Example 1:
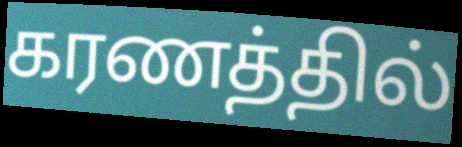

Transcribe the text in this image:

கரணத்தில்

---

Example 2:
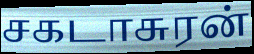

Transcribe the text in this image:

சகடாசுரன்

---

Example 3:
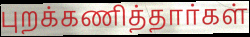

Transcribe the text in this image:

புறக்கணித்தார்கள்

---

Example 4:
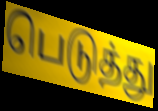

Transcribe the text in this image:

பெடுத்து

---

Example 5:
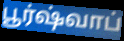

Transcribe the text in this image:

பூர்ஷ்வாப்